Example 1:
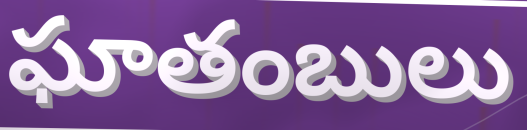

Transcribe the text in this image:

ఘాతంబులు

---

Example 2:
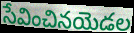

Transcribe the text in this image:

సేవించినయెడల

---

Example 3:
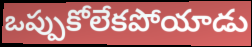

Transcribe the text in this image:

ఒప్పుకోలేకపోయాడు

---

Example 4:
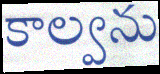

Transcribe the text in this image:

కాల్వను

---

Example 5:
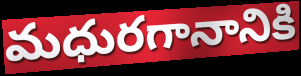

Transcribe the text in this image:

మధురగానానికి